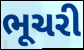
ભૂચરી